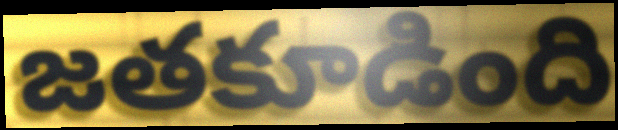
జతకూడింది